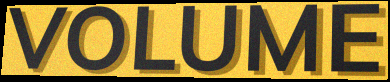
VOLUME